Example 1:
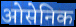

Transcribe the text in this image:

ओसेनिक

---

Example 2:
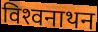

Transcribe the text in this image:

विश्वनाथन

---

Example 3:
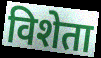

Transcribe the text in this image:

विशेता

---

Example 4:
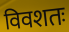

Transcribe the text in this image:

विवशतः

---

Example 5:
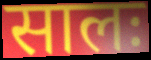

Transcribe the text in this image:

सालः